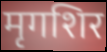
मृगशिर